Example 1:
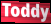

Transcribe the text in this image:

Toddy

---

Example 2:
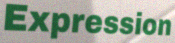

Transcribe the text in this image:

Expression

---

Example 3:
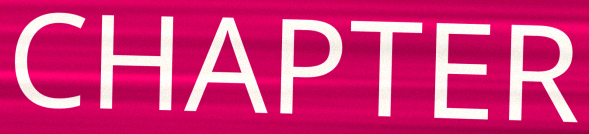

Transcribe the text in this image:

CHAPTER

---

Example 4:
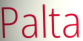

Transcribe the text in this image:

Palta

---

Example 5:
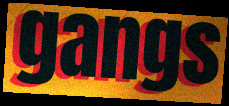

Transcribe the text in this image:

gangs